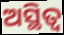
ଅସ୍ଥିତ୍ୱ